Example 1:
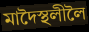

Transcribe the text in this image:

মাদৈস্থলীলৈ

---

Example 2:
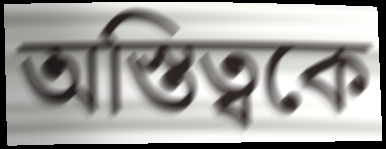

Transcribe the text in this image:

অস্তিত্বকে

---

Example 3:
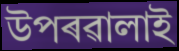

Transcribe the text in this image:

উপৰৱালাই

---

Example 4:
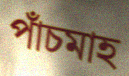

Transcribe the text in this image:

পাঁচমাহ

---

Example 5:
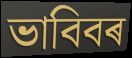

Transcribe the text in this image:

ভাবিবৰ